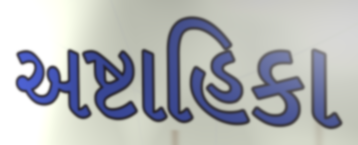
અષ્ટાહિકા